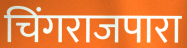
चिंगराजपारा